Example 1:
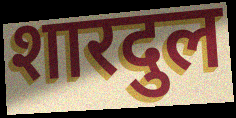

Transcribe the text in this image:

शारदुल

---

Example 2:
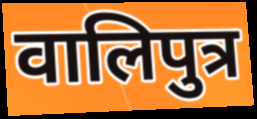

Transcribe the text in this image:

वालिपुत्र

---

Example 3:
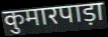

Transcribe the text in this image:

कुमारपाड़ा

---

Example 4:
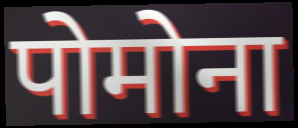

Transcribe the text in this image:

पोमोना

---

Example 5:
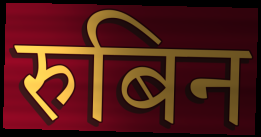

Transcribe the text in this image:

रुबिन